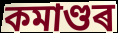
কমাণ্ডৰ